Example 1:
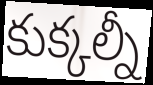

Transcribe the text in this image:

కుక్కల్నీ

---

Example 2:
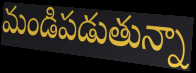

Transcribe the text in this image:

మండిపడుతున్నా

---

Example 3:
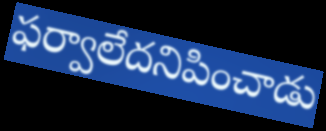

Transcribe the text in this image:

ఫర్వాలేదనిపించాడు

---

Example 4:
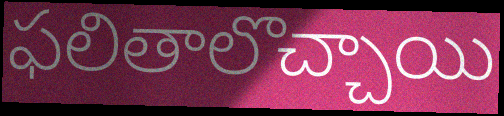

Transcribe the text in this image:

ఫలితాలొచ్చాయి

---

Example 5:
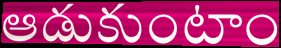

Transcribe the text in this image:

ఆడుకుంటాం